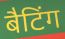
बैटिंग